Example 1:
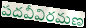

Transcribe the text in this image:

పదవీవిరమణ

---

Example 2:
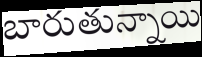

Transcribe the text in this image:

బారుతున్నాయి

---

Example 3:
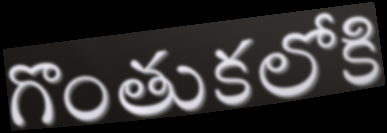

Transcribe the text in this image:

గొంతుకలోకి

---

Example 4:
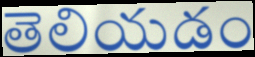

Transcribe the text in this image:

తెలియడం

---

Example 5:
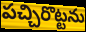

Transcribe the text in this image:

పచ్చిరొట్టను